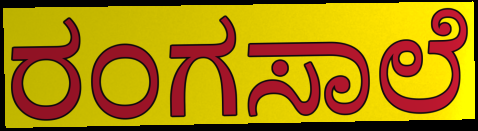
ರಂಗಸಾಲೆ